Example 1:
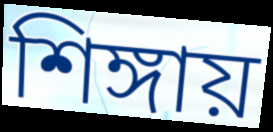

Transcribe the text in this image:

শিঙ্গায়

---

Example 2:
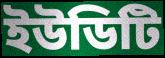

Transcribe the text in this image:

ইউডিটি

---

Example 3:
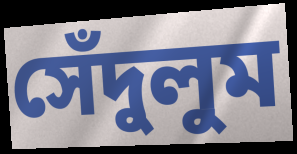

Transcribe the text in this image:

সেঁদুলুম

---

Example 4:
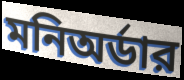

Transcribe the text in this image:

মনিঅর্ডার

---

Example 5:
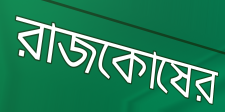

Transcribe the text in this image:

রাজকোষের